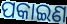
ପକାଇଣ